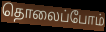
தொலைப்போம்